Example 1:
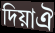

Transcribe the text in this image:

দিয়াঐ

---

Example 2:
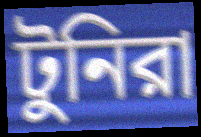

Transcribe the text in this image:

টুনিরা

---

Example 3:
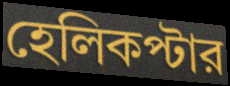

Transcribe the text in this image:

হেলিকপ্টার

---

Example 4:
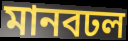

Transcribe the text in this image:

মানবঢল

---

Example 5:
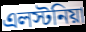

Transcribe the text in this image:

এলস্টনিয়া